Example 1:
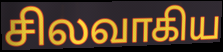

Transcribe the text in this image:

சிலவாகிய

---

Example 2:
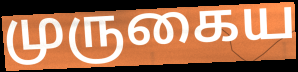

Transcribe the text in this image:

முருகைய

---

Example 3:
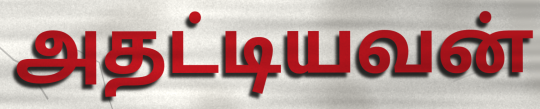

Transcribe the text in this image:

அதட்டியவன்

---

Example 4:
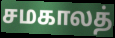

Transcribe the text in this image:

சமகாலத்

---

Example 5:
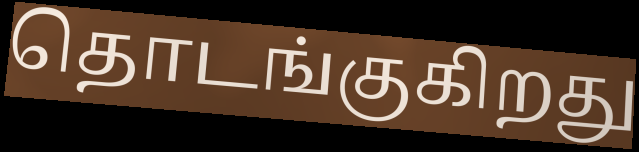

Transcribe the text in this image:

தொடங்குகிறது